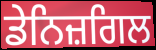
ਡੇਨਿਜ਼ਗਿਲ